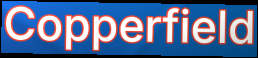
Copperfield